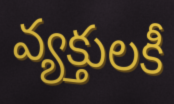
వ్యక్తులకీ